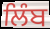
ਲਿੰਬ